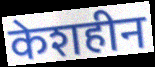
केशहीन